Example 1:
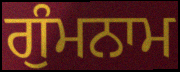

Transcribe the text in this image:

ਗੁੰਮਨਾਮ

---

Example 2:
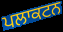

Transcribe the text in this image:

ਪਲਾਕਟਨ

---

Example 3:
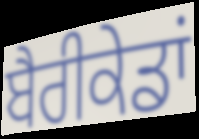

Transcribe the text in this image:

ਬੈਰੀਕੇਡਾਂ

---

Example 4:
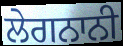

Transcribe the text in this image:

ਲੇਗਨਾਨੀ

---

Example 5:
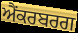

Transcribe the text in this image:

ਐਂਕਰਬਰਗ